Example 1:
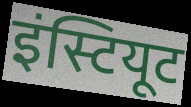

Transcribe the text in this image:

इंस्टियूट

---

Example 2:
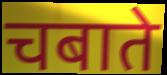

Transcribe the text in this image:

चबाते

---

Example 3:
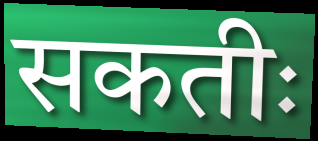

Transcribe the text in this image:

सकतीः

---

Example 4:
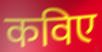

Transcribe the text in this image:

कविए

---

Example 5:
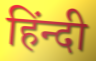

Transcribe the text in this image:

हिंन्दी